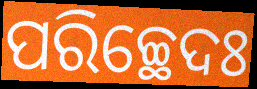
ପରିଚ୍ଛେଦଃ